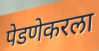
पेडणेकरला